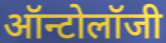
ऑन्टोलॉजी